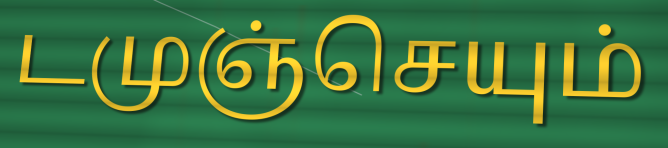
டமுஞ்செயும்